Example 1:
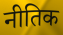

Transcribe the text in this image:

नीतिक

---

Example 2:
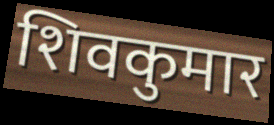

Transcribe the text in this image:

शिवकुमार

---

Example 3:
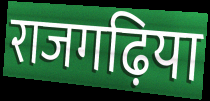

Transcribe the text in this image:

राजगढ़िया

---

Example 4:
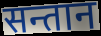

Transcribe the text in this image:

सन्तान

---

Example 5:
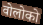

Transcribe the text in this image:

वोलोको